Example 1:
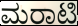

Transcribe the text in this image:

ಮರಾಟಿ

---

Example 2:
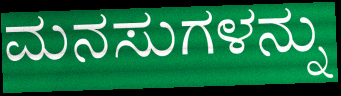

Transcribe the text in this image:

ಮನಸುಗಳನ್ನು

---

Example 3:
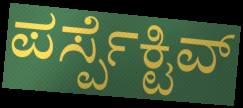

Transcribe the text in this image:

ಪರ್ಸ್ಪೆಕ್ಟಿವ್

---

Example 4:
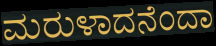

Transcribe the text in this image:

ಮರುಳಾದನೆಂದಾ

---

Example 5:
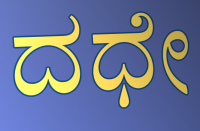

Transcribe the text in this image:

ದಧೇ